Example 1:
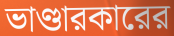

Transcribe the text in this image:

ভাণ্ডারকারের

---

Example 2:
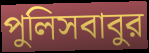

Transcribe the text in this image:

পুলিসবাবুর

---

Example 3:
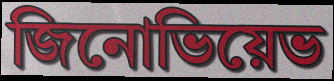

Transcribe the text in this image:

জিনোভিয়েভ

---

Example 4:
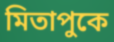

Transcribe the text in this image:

মিতাপুকে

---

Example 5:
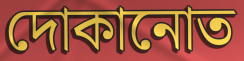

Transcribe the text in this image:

দোকানোত